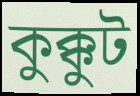
কুক্কুট